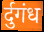
र्दुगंध